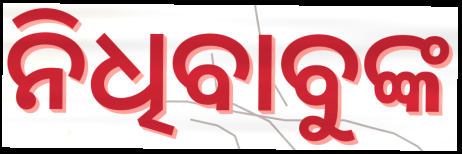
ନିଧିବାବୁଙ୍କ